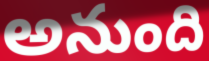
అనుంది